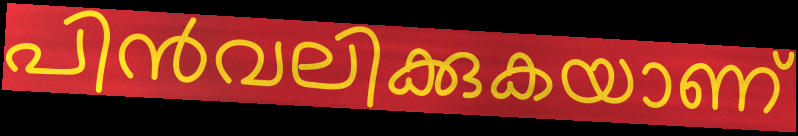
പിൻവലിക്കുകയാണ്